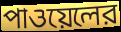
পাওয়েলের